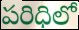
పరిధిలో